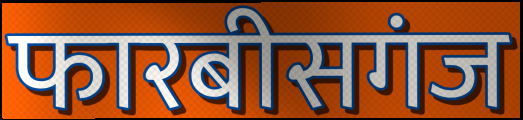
फारबीसगंज